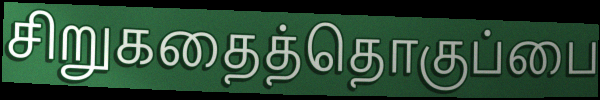
சிறுகதைத்தொகுப்பை